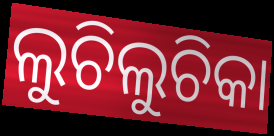
ଲୁଚିଲୁଚିକା